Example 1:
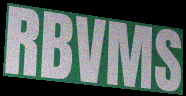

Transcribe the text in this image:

RBVMS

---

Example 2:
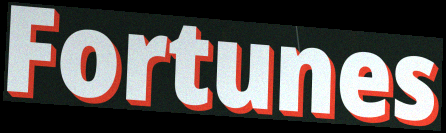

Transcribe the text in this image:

Fortunes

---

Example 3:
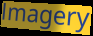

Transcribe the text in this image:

Imagery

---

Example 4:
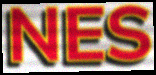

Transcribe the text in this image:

NES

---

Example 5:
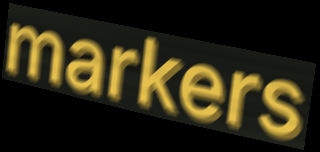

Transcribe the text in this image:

markers